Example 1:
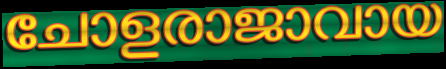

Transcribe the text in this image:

ചോളരാജാവായ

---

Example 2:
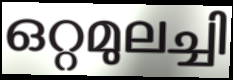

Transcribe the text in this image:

ഒറ്റമുലച്ചി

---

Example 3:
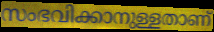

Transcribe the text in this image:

സംഭവിക്കാനുള്ളതാണ്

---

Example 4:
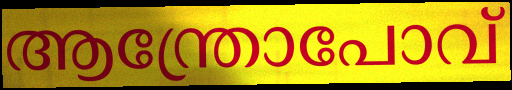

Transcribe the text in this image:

ആന്ത്രോപോവ്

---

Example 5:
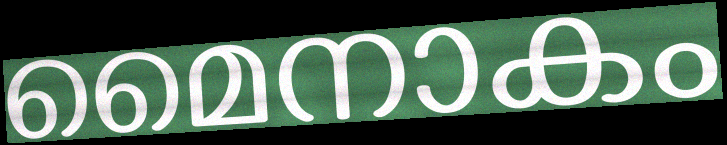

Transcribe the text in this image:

മൈനാകം